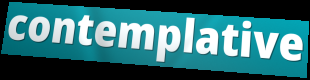
contemplative